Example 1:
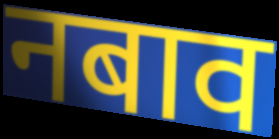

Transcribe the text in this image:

नबाव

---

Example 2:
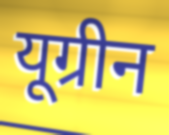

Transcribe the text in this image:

यूग्रीन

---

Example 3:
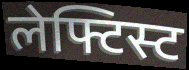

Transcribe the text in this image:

लेफ्टिस्ट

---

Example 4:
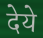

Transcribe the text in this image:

देये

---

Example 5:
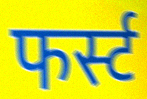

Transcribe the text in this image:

फर्स्ट